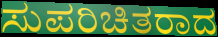
ಸುಪರಿಚಿತರಾದ